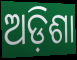
ଅଡ଼ିଶା